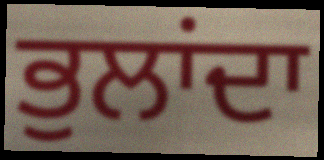
ਭੁਲਾਂਦਾ